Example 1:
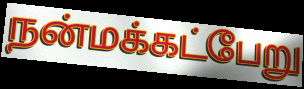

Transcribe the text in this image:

நன்மக்கட்பேறு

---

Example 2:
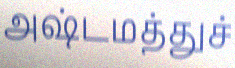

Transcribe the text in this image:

அஷ்டமத்துச்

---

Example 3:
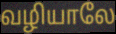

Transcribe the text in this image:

வழியாலே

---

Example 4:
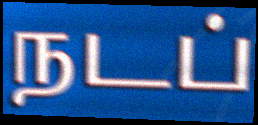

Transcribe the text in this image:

நடப்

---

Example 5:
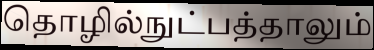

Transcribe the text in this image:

தொழில்நுட்பத்தாலும்